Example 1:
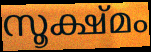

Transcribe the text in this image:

സൂക്ഷ്‌മം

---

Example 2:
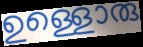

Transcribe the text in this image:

ഉള്ളൊരു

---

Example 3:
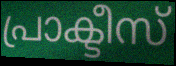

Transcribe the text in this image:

പ്രാക്ടീസ്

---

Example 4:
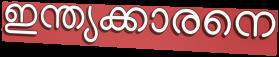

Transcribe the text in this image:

ഇന്ത്യക്കാരനെ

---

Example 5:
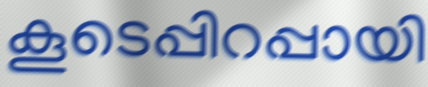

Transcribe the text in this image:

കൂടെപ്പിറപ്പായി